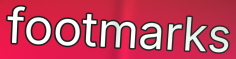
footmarks